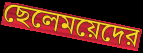
ছেলেময়েদের